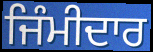
ਜਿੰਮੀਦਾਰ